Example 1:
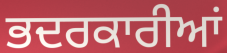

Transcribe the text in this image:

ਭਦਰਕਾਰੀਆਂ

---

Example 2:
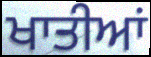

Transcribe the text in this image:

ਖਾਤੀਆਂ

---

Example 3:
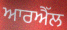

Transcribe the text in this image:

ਆਰਐੱਲ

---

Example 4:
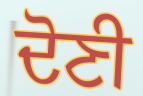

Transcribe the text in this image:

ਦੋਣੀ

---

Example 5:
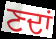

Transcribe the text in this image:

ਣਦਾਂ